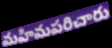
మహిమపరిచారు